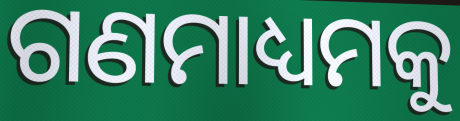
ଗଣମାଧ୍ୟମକୁ